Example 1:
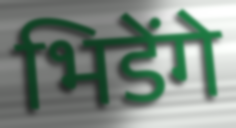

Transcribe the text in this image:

भिडेंगे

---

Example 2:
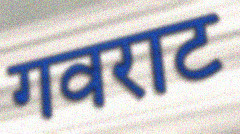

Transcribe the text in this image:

गवराट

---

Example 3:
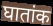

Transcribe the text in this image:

घातांक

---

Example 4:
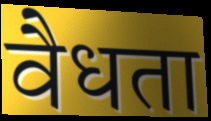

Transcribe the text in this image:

वैधता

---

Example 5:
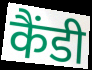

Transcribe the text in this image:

कैंडी